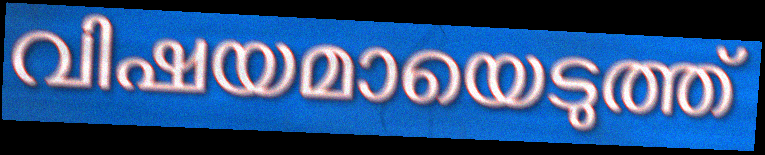
വിഷയമായെടുത്ത്